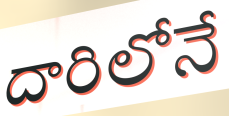
దారిలోనే